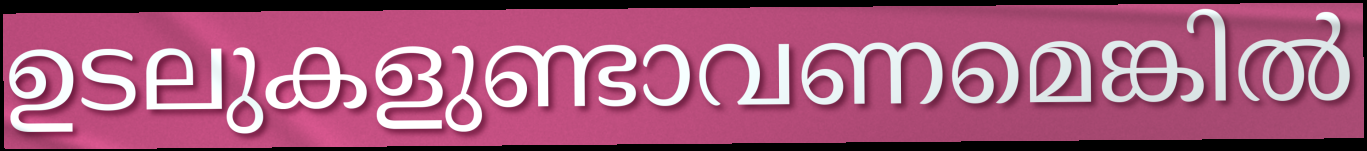
ഉടലുകളുണ്ടാവണമെങ്കിൽ